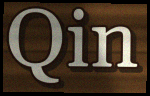
Qin